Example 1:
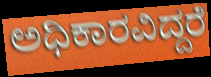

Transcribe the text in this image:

ಅಧಿಕಾರವಿದ್ದರೆ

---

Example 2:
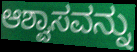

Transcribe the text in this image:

ಆಶ್ವಾಸವನ್ನು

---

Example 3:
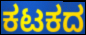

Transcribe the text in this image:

ಕಟಕದ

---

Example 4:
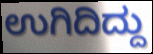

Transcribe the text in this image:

ಉಗಿದಿದ್ದು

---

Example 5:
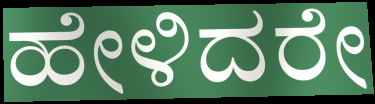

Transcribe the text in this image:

ಹೇಳಿದರೇ